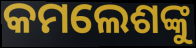
କମଲେଶଙ୍କୁ